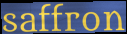
saffron